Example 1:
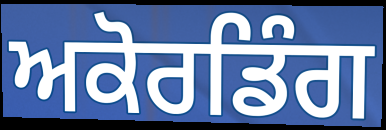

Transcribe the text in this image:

ਅਕੋਰਡਿੰਗ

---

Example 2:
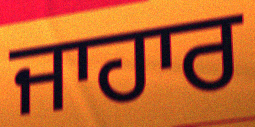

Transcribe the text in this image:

ਜਾਹਾਰ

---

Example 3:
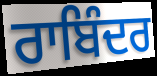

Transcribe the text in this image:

ਰਾਬਿੰਦਰ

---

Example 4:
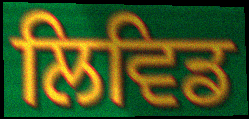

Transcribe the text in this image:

ਲਿਵਿਡ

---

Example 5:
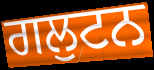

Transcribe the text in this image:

ਗਲੁਟਨ